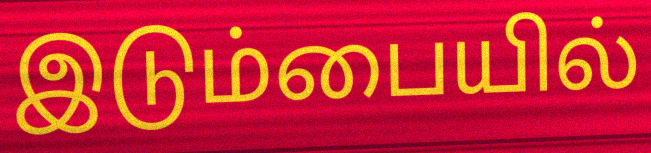
இடும்பையில்